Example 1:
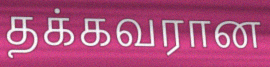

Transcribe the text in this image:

தக்கவரான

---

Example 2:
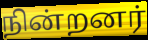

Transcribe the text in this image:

நின்றனர்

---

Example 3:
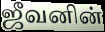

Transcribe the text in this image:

ஜீவனின்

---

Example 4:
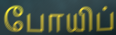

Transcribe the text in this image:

போயிப்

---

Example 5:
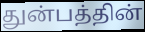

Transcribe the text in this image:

துன்பத்தின்